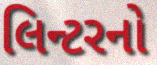
લિન્ટરનો